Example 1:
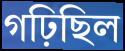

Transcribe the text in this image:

গঢ়িছিল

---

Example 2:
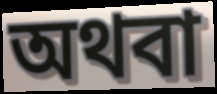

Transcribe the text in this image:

অথবা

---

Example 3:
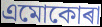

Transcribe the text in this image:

এমোকোৰা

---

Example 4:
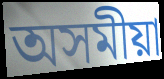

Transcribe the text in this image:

অসমীয়া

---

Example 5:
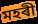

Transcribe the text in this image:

মহৰী